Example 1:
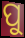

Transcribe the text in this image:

ପୁ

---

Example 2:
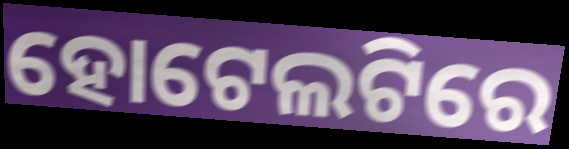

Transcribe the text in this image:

ହୋଟେଲଟିରେ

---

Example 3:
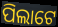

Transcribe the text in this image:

ପିଲାଟେ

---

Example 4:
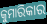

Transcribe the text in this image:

କୁମାରିକାର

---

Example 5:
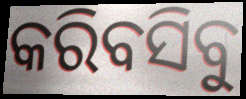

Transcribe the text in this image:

କରିବସିବୁ